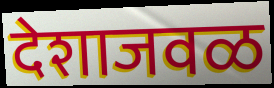
देशाजवळ